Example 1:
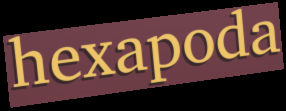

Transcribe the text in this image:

hexapoda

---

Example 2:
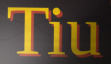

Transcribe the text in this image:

Tiu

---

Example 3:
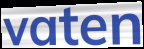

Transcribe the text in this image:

vaten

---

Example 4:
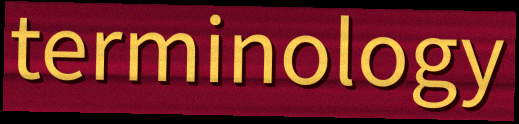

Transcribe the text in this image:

terminology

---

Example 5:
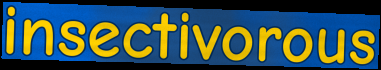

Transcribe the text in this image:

insectivorous